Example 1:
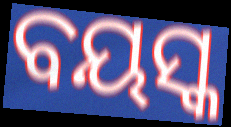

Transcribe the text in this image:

ବୟସ୍କ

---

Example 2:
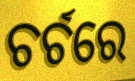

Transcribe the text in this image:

ଚର୍ଚରେ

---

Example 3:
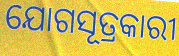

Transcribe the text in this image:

ଯୋଗସୂତ୍ରକାରୀ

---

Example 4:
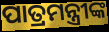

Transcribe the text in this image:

ପାତ୍ରମନ୍ତ୍ରୀଙ୍କ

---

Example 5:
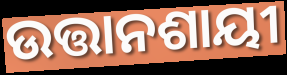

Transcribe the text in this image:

ଉତ୍ତାନଶାୟୀ